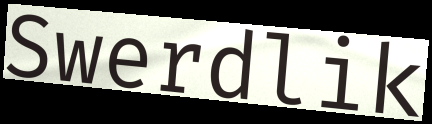
Swerdlik